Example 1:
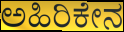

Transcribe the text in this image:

ಅಹಿರಿಕೇನ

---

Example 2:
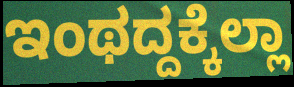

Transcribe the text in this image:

ಇಂಥದ್ದಕ್ಕೆಲ್ಲಾ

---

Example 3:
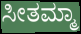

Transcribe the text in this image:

ಸೀತಮ್ಮಾ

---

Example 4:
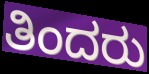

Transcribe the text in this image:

ತಿಂದರು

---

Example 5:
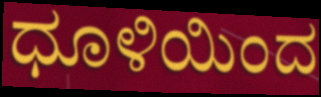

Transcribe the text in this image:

ಧೂಳಿಯಿಂದ